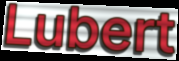
Lubert